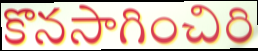
కొనసాగించిరి